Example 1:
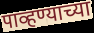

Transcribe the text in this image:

पाव्हण्याच्या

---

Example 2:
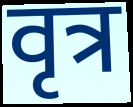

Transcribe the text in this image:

वृत्र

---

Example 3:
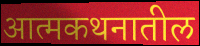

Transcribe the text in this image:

आत्मकथनातील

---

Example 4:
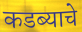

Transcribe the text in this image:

कडब्याचे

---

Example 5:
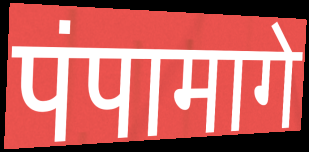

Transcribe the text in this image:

पंपामागे